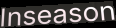
Inseason